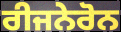
ਰੀਜਨੇਰੋਨ